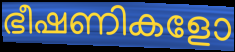
ഭീഷണികളോ